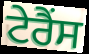
ਟੇਰੈਂਸ